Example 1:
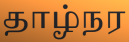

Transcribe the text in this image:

தாழ்நர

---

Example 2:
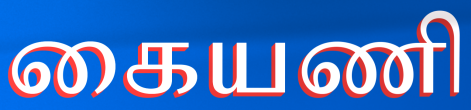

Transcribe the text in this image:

கையணி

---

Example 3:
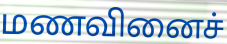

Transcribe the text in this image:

மணவினைச்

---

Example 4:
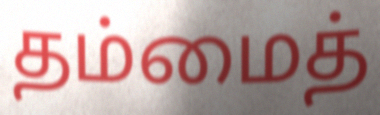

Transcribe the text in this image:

தம்மைத்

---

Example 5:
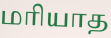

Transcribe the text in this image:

மரியாத